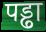
पड्ढा